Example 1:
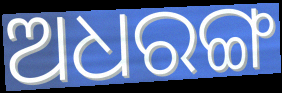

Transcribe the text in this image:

ଅଧରଙ୍ଗ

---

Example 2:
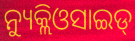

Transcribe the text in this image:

ନ୍ୟୁକ୍ଲିଓସାଇଡ୍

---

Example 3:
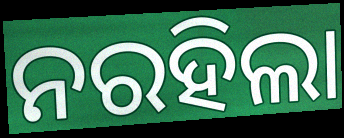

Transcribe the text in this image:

ନରହିଲା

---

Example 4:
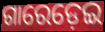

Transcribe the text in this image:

ଗାରେଡ଼େଇ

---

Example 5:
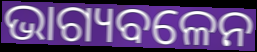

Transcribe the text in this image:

ଭାଗ୍ୟବଳେନ